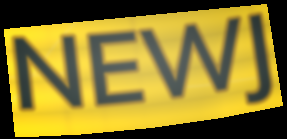
NEWJ